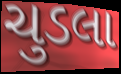
ચુડલા